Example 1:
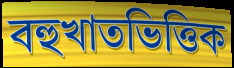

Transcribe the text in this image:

বহুখাতভিত্তিক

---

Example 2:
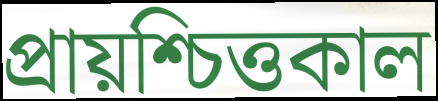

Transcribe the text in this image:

প্রায়শ্চিত্তকাল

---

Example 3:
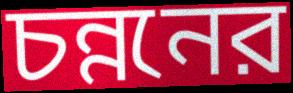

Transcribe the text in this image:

চন্ননের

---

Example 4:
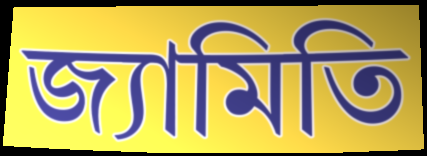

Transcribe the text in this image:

জ্যামিতি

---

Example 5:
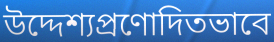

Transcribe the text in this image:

উদ্দেশ্যপ্রণোদিতভাবে